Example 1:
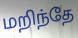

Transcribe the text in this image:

மறிந்தே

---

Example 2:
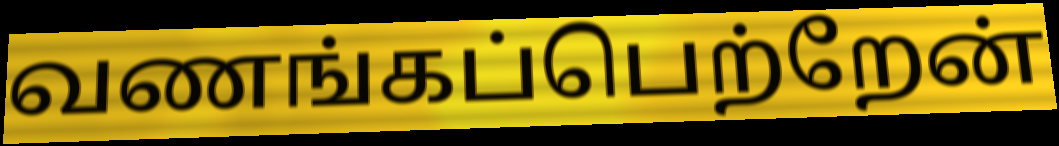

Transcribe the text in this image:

வணங்கப்பெற்றேன்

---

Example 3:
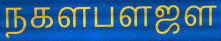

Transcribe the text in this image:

நகளபளஜள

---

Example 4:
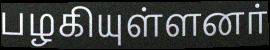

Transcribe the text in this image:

பழகியுள்ளனர்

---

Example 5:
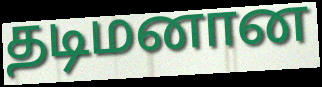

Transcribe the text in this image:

தடிமனான